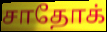
சாதோக்